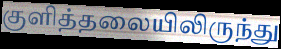
குளித்தலையிலிருந்து